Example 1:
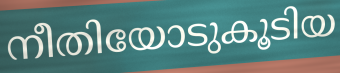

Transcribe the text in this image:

നീതിയോടുകൂടിയ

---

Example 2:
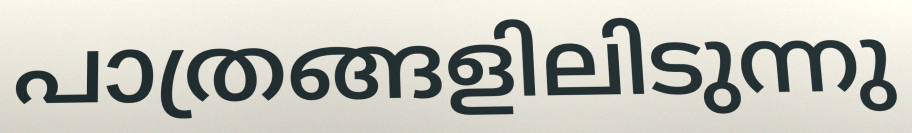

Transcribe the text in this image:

പാത്രങ്ങളിലിടുന്നു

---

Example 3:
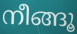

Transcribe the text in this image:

നീങ്ങൂ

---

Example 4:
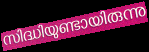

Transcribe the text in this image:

സിദ്ധിയുണ്ടായിരുന്നു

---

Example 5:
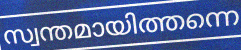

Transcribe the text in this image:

സ്വന്തമായിത്തന്നെ